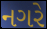
નગરે